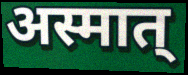
अस्मात्